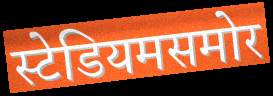
स्टेडियमसमोर